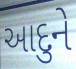
આદુને